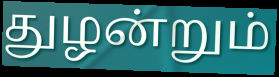
துழன்றும்